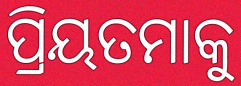
ପ୍ରିୟତମାକୁ